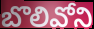
బొలివోని